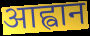
आह्वान